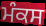
ਮੰਕਸ